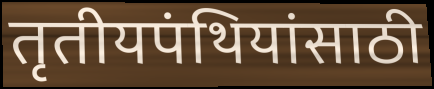
तृतीयपंथियांसाठी